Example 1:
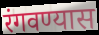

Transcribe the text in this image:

रंगवण्यास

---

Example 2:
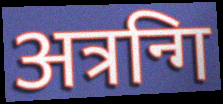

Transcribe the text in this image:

अत्रन्गि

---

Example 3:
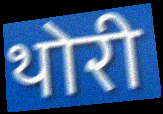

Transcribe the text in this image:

थोरी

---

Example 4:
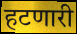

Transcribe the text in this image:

हटणारी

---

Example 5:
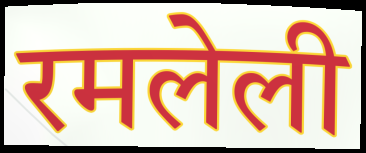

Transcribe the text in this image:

रमलेली